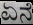
ಏನೆ